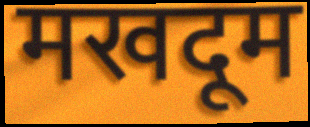
मखदूम